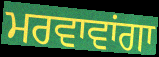
ਮਰਵਾਵਾਂਗਾ